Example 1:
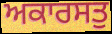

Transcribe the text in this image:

ਅਕਾਰਸਤੁ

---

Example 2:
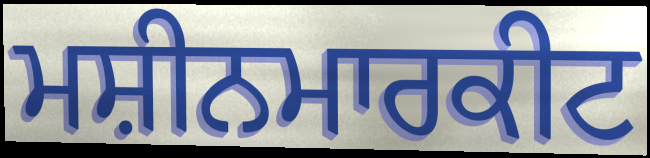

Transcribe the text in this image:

ਮਸ਼ੀਨਮਾਰਕੀਟ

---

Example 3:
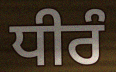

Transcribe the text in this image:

ਧੀਰੰ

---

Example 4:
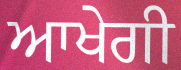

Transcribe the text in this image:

ਆਖੇਗੀ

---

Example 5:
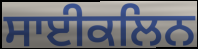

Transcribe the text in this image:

ਸਾਈਕਲਿਨ